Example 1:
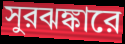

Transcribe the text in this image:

সুরঝঙ্কারে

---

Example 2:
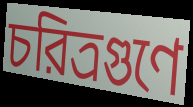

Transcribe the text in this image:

চরিত্রগুণে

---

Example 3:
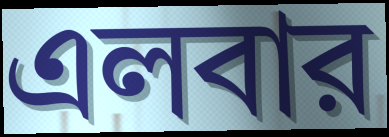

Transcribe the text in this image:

এলবার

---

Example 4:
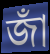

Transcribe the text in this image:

জাঁ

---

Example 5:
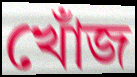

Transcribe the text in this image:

খোঁজ